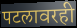
पटलावरही